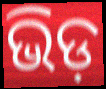
ଭିଡ଼